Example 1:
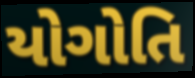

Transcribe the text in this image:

યોગોતિ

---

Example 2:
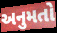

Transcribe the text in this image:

અનુમતો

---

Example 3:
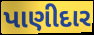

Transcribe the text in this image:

પાણીદાર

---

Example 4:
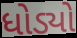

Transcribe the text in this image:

ધોડ્યો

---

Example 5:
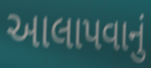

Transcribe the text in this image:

આલાપવાનું